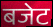
बजेट